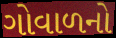
ગોવાળનો